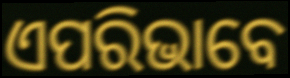
ଏପରିଭାବେ